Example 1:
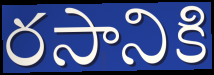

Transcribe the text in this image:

రసానికి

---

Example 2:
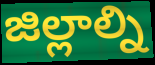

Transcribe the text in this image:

జిల్లాల్ని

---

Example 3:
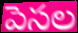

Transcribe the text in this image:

పెసల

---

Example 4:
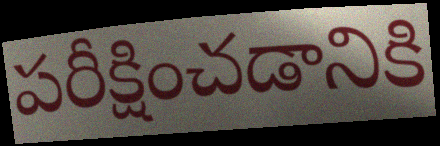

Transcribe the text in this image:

పరీక్షించడానికి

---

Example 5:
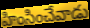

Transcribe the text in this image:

హింసించేవాడు